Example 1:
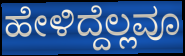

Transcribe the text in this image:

ಹೇಳಿದ್ದೆಲ್ಲವೂ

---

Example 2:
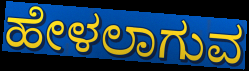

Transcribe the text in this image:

ಹೇಳಲಾಗುವ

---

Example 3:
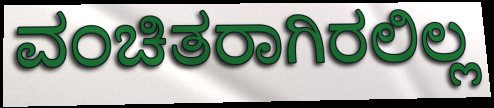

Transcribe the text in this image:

ವಂಚಿತರಾಗಿರಲಿಲ್ಲ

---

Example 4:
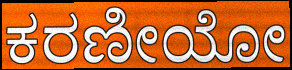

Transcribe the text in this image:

ಕರಣೀಯೋ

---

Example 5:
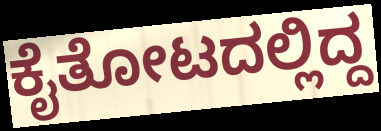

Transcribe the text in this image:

ಕೈತೋಟದಲ್ಲಿದ್ದ